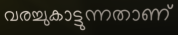
വരച്ചുകാട്ടുന്നതാണ്